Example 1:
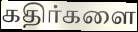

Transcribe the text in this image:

கதிர்களை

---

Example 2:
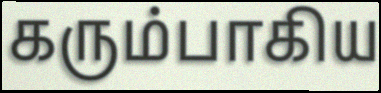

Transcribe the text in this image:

கரும்பாகிய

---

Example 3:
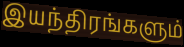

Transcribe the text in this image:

இயந்திரங்களும்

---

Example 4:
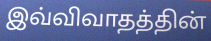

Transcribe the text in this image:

இவ்விவாதத்தின்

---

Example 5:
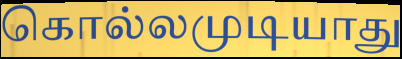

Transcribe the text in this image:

கொல்லமுடியாது